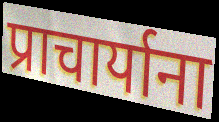
प्राचार्याना